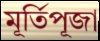
মূৰ্তিপূজা